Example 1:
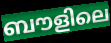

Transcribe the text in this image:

ബൗളിലെ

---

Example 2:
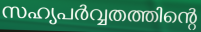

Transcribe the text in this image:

സഹ്യപർവ്വതത്തിന്റെ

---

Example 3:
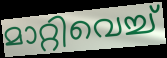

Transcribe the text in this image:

മാറ്റിവെച്ച്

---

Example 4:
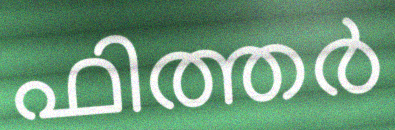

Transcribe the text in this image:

ഫിത്തർ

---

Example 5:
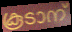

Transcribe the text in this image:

കൂടാന്